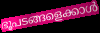
ഭൂപടങ്ങളെക്കാൾ